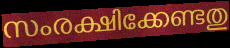
സംരക്ഷിക്കേണ്ടതു